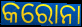
କରୋନା